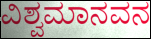
ವಿಶ್ವಮಾನವನ